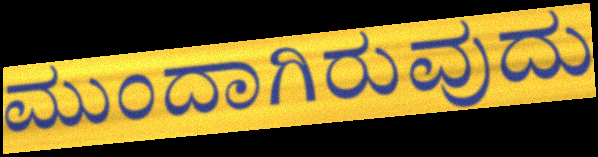
ಮುಂದಾಗಿರುವುದು